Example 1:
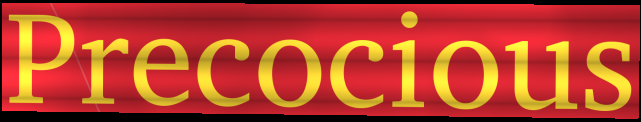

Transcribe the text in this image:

Precocious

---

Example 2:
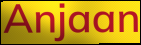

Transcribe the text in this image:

Anjaan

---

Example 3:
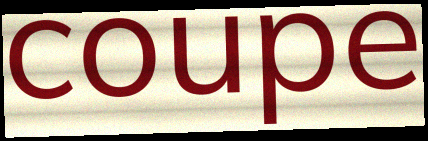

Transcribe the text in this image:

coupe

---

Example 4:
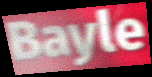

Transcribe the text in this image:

Bayle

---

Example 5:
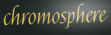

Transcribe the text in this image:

chromosphere